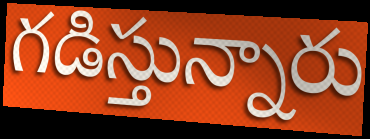
గడిస్తున్నారు